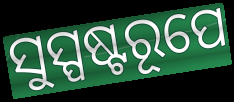
ସୁସ୍ପଷ୍ଟରୂପେ